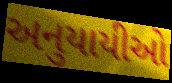
અનુયાયીઓ